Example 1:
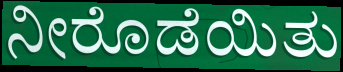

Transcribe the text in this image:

ನೀರೊಡೆಯಿತು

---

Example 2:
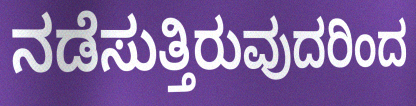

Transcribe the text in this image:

ನಡೆಸುತ್ತಿರುವುದರಿಂದ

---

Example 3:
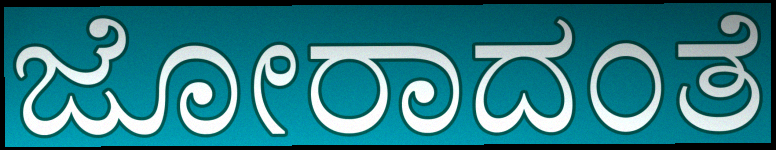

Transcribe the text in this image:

ಜೋರಾದಂತೆ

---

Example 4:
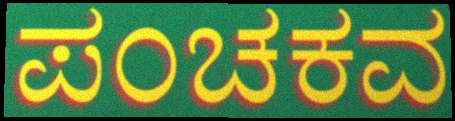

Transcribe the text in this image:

ಪಂಚಕವ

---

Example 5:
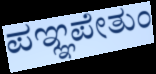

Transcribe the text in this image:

ಪಞ್ಞಪೇತುಂ